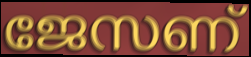
ജേസണ്